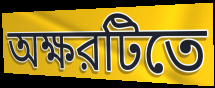
অক্ষরটিতে